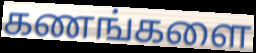
கணங்களை